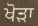
ਖੋੜਾ